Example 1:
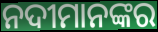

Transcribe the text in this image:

ନଦୀମାନଙ୍କର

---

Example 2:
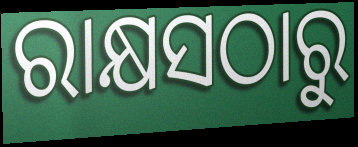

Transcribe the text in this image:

ରାକ୍ଷସଠାରୁ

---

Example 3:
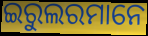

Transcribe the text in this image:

ଇରୁଲରମାନେ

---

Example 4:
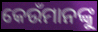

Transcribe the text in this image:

କେଉଁମାନଙ୍କୁ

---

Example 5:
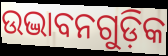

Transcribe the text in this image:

ଉଦ୍ଭାବନଗୁଡ଼ିକ